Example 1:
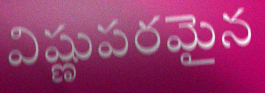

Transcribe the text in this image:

విష్ణుపరమైన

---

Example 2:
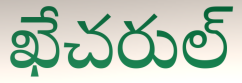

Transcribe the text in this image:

ఖేచరుల్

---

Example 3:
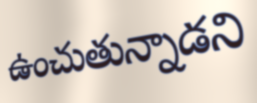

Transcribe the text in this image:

ఉంచుతున్నాడని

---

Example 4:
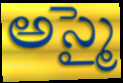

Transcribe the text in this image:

అస్మై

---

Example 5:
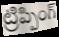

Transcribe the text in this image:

ట్రిప్పింగ్